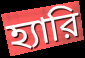
হ্যারি